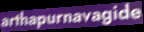
arthapurnavagide